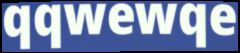
qqwewqe